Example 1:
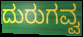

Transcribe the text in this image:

ದುರುಗವ್ವ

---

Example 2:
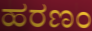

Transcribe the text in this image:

ಹರಣಂ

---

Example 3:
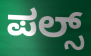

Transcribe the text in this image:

ಪಲ್ಸ್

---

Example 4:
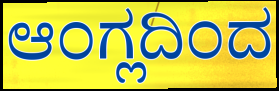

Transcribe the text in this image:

ಆಂಗ್ಲದಿಂದ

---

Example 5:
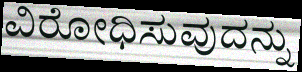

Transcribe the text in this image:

ವಿರೋಧಿಸುವುದನ್ನು